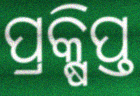
ପ୍ରକ୍ଷିପ୍ତ